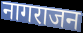
नागराजन